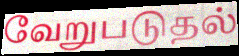
வேறுபடுதல்